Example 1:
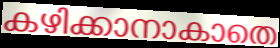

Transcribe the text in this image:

കഴിക്കാനാകാതെ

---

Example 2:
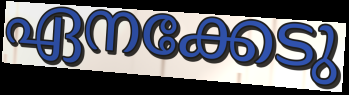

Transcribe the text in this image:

ഏനക്കേടു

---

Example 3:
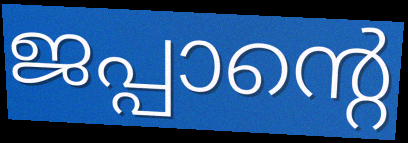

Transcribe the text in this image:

ജപ്പാന്റെ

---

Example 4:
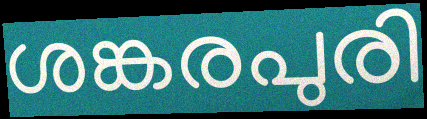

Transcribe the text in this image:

ശങ്കരപുരി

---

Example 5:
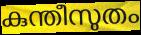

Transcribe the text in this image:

കുന്തീസുതം